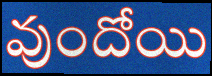
వుందోయి